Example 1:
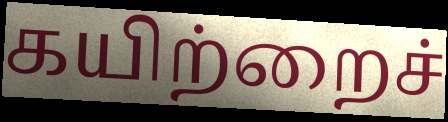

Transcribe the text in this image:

கயிற்றைச்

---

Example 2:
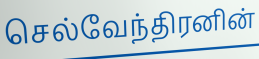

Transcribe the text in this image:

செல்வேந்திரனின்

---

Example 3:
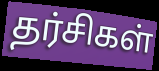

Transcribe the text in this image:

தர்சிகள்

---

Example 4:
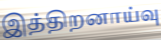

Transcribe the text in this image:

இத்திறனாய்வு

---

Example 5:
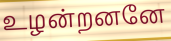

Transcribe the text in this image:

உழன்றனனே